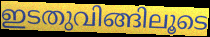
ഇടതുവിങ്ങിലൂടെ